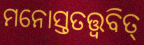
ମନୋସ୍ତତତ୍ତ୍ୱବିତ୍